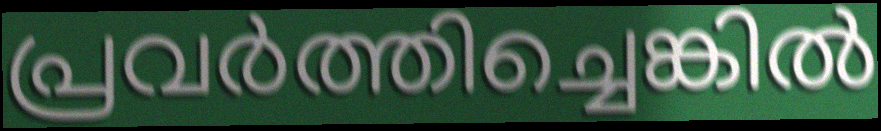
പ്രവർത്തിച്ചെങ്കിൽ